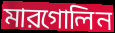
মারগোলিন